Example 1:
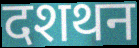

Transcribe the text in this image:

दशथन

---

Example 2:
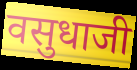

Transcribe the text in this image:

वसुधाजी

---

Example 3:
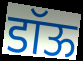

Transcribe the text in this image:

डॉऊ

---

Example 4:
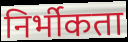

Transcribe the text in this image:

निर्भीकता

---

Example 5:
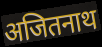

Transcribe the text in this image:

अजितनाथ